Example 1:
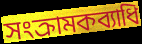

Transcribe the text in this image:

সংক্রামকব্যাধি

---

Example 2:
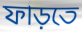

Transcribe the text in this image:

ফাড়তে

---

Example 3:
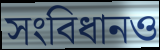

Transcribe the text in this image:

সংবিধানও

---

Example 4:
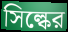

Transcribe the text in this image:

সিল্কের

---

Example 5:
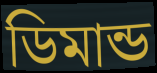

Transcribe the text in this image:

ডিমান্ড